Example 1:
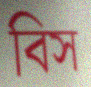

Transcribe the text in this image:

বিস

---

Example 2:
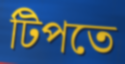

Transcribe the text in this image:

টিপতে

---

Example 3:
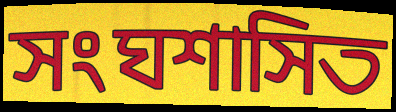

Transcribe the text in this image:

সংঘশাসিত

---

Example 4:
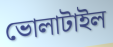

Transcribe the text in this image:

ভোলাটাইল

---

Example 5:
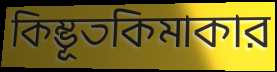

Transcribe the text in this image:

কিম্ভূতকিমাকার